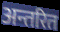
अन्तरित